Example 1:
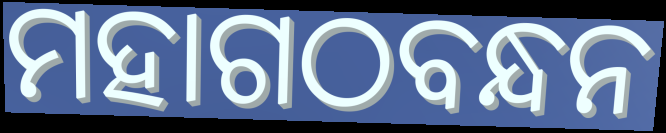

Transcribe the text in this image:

ମହାଗଠବନ୍ଧନ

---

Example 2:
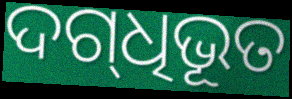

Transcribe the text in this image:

ଦଗ୍‍ଧିଭୂତ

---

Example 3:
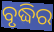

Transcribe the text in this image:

ବୃଦ୍ଧିର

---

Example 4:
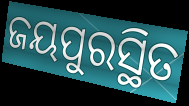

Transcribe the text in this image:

ଜୟପୁରସ୍ଥିତ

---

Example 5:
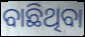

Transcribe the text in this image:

ବାଛିଥିବା